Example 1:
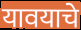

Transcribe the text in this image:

यावयाचे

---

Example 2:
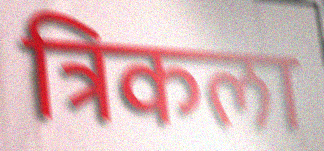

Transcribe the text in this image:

त्रिकला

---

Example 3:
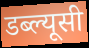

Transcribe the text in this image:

डब्ल्यूसी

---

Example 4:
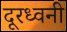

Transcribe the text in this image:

दूरध्वनी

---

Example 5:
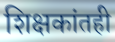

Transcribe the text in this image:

शिक्षकांतही